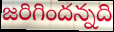
జరిగిందన్నది